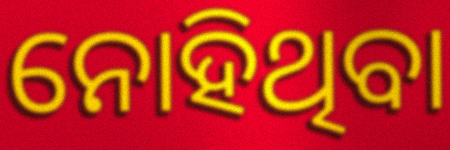
ନୋହିଥିବା